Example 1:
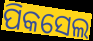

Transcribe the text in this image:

ପିକସେଲ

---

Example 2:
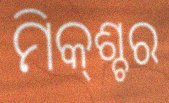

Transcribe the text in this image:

ମିକ୍‌ଶ୍ଚର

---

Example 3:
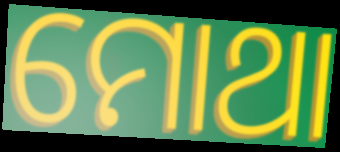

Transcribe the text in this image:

ମୋଥା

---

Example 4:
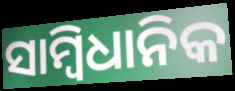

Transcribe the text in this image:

ସାମ୍ବିଧାନିକ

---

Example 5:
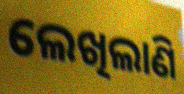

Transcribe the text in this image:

ଲେଖିଲାଣି